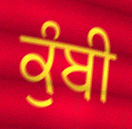
ਕੁੰਬੀ